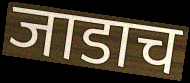
जाडाच